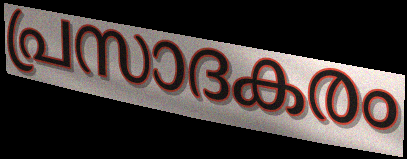
പ്രസാദകരം